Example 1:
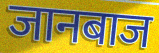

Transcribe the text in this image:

जानबाज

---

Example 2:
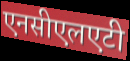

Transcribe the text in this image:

एनसीएलएटी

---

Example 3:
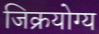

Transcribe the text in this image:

जिक्रयोग्य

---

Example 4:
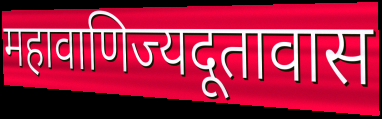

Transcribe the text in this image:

महावाणिज्यदूतावास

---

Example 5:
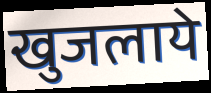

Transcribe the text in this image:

खुजलाये